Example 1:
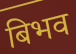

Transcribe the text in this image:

बिभव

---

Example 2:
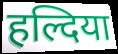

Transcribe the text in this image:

हल्दिया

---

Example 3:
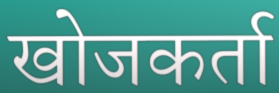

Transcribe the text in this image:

खोजकर्ता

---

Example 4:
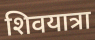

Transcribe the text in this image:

शिवयात्रा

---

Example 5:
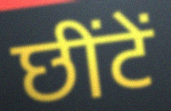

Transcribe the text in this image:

छींटें